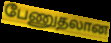
பேணுதலான